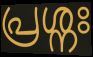
പ്രശ്നഃ